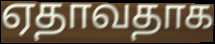
ஏதாவதாக